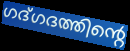
ഗദ്ഗദത്തിന്റെ